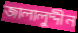
জালালুদ্দীন